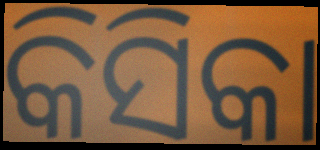
କିସିକା